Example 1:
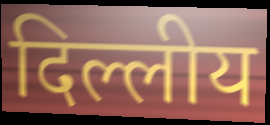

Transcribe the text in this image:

दिल्लीय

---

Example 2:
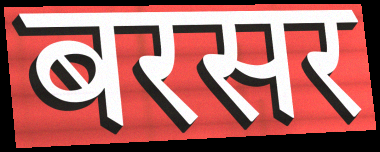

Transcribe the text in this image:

बरसर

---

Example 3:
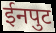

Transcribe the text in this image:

ईनपुट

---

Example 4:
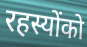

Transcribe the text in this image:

रहस्योंको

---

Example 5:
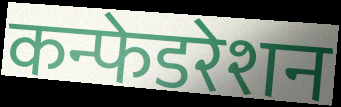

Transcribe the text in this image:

कन्‍फेडरेशन